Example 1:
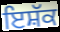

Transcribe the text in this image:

ਇਸ਼ੱਕ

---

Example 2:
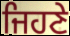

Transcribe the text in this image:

ਜਿਹਣੇ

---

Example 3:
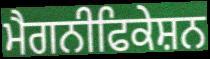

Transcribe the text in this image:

ਮੈਗਨੀਫਿਕੇਸ਼ਨ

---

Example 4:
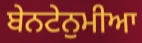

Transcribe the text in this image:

ਬੇਨਟੇਨੁਮੀਆ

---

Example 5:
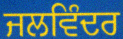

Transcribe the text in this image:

ਜਲਵਿੰਦਰ